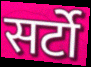
सर्टो